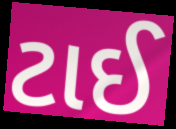
ટાઈ